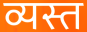
व्यस्त